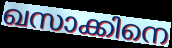
ഖസാക്കിനെ